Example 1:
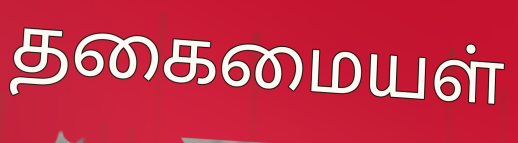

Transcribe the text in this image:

தகைமையள்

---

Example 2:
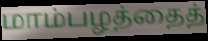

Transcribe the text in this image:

மாம்பழத்தைத்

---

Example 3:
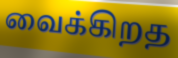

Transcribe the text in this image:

வைக்கிறத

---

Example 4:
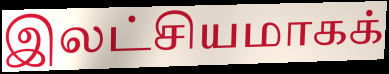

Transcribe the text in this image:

இலட்சியமாகக்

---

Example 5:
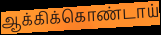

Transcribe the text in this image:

ஆக்கிக்கொண்டாய்